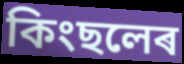
কিংছলেৰ